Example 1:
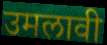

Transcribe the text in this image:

उमलावी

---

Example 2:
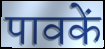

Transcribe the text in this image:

पावकें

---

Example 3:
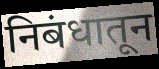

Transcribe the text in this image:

निबंधातून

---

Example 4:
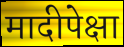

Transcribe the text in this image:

मादीपेक्षा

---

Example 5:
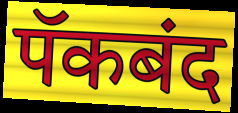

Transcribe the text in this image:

पॅकबंद